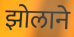
झोलाने